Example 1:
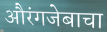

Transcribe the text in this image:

औरंगजेबाचा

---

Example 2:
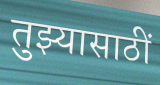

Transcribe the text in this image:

तुझ्यासाठीं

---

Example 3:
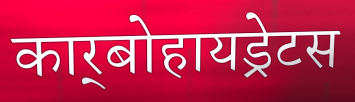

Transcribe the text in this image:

कार्बोहायड्रेटस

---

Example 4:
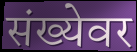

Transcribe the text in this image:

संख्येवर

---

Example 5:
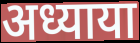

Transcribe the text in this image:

अध्याया